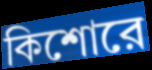
কিশোরে